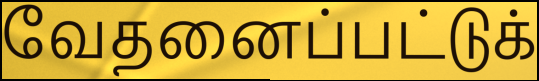
வேதனைப்பட்டுக்